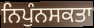
ਨਿਪੁੰਨਸਕਤਾ